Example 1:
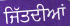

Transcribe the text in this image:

ਜਿੱਤਦੀਆਂ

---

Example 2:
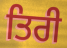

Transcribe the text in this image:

ਤਿਰੀ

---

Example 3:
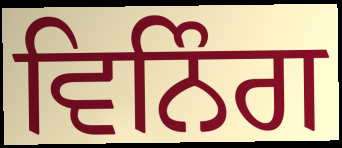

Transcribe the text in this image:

ਵਿਨਿੰਗ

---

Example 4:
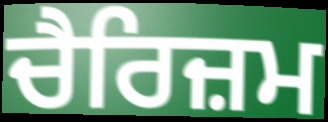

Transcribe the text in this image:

ਚੈਰਿਜ਼ਮ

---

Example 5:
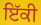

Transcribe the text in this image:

ਇੱਕੀ